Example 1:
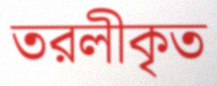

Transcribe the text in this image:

তরলীকৃত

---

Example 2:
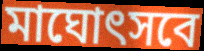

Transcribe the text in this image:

মাঘোৎসবে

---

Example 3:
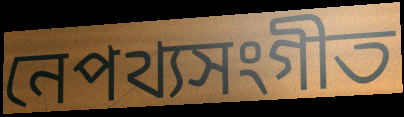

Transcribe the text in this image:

নেপথ্যসংগীত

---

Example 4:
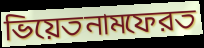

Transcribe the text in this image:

ভিয়েতনামফেরত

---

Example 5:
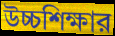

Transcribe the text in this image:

উচ্চশিক্ষার